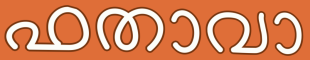
ഫതാവാ